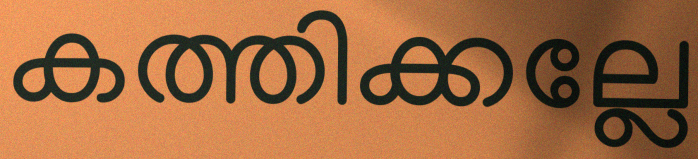
കത്തിക്കല്ലേ